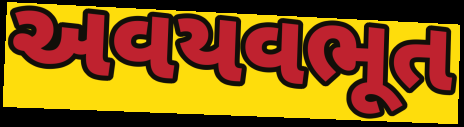
અવયવભૂત